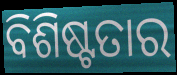
ବିଶିଷ୍ଟତାର